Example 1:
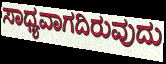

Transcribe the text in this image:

ಸಾಧ್ಯವಾಗದಿರುವುದು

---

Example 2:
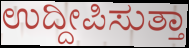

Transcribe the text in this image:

ಉದ್ದೀಪಿಸುತ್ತಾ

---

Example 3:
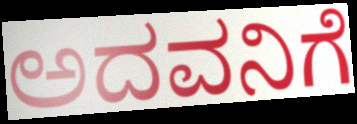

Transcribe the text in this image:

ಅದವನಿಗೆ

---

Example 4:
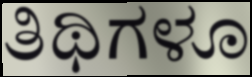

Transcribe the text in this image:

ತಿಥಿಗಳೂ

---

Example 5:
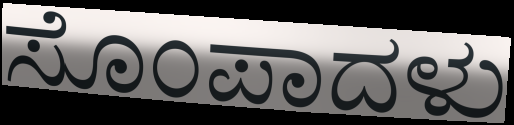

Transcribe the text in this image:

ಸೊಂಪಾದಳು